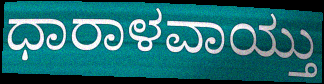
ಧಾರಾಳವಾಯ್ತು